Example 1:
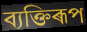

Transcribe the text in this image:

ব্যক্তিৰূপ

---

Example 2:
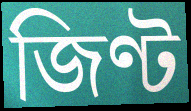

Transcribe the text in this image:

জিণ্ট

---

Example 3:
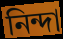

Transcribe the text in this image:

নিন্দা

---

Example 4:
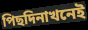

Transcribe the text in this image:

পিছদিনাখনেই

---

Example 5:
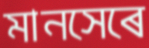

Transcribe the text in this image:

মানসেৰে